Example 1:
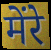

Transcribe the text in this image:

मेंरे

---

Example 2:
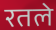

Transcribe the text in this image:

रतले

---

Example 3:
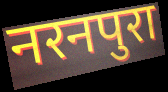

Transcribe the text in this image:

नरनपुरा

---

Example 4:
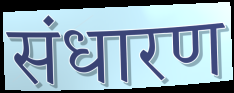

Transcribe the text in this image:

संधारण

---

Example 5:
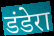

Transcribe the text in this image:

डंडेरा